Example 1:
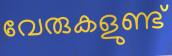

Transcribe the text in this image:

വേരുകളുണ്ട്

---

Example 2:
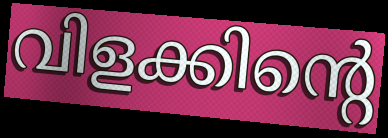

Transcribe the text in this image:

വിളക്കിന്റെ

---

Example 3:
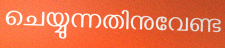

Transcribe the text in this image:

ചെയ്യുന്നതിനുവേണ്ട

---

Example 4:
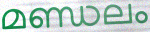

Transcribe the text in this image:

മണ്ഡലം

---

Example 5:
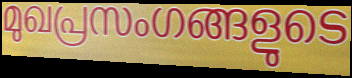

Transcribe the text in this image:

മുഖപ്രസംഗങ്ങളുടെ